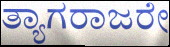
ತ್ಯಾಗರಾಜರೇ